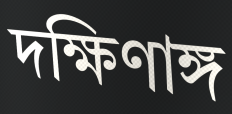
দক্ষিণাঙ্গ